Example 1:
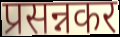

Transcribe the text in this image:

प्रसन्नकर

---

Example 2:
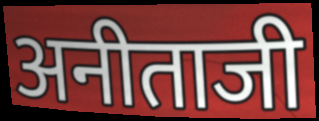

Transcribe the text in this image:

अनीताजी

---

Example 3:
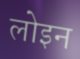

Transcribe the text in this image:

लोइन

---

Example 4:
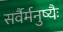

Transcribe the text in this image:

सर्वैर्मनुष्यैः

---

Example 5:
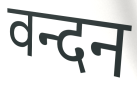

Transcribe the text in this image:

वन्दन